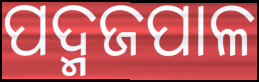
ପଦ୍ମଜପାଳ